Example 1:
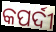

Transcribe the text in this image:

କପର୍ଦୀ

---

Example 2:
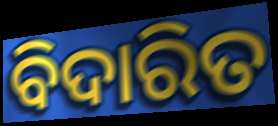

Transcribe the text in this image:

ବିଦାରିତ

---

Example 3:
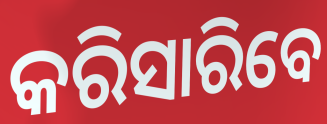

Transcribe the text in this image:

କରିସାରିବେ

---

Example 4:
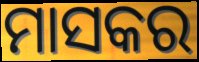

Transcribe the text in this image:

ମାସକର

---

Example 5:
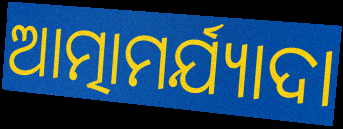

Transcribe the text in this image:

ଆତ୍ମାମର୍ଯ୍ୟାଦା